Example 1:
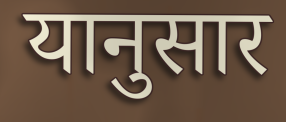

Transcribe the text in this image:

यानुसार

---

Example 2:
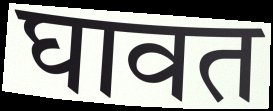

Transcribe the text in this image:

घावत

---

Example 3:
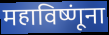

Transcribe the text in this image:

महाविष्णूंना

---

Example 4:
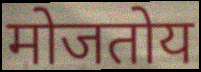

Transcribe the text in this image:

मोजतोय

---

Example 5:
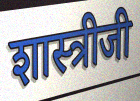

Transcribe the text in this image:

शास्त्रीजी